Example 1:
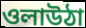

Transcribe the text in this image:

ওলাউঠা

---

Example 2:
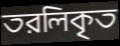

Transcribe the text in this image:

তরলিকৃত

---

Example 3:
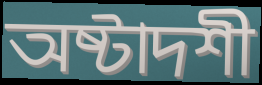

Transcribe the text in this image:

অষ্টাদশী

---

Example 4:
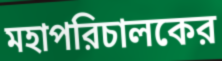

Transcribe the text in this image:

মহাপরিচালকের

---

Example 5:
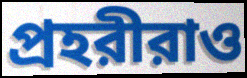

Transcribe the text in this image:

প্রহরীরাও